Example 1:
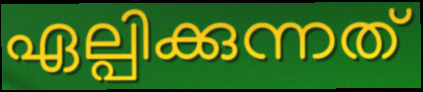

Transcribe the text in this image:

ഏല്പിക്കുന്നത്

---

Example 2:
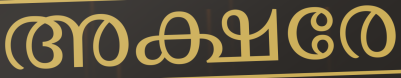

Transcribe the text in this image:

അക്ഷരേ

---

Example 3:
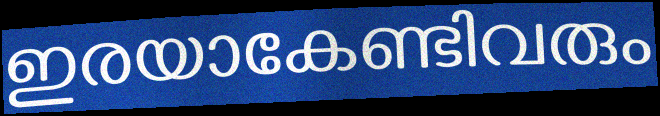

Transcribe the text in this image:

ഇരയാകേണ്ടിവരും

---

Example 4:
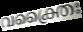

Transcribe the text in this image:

വക്ത്രൈഃ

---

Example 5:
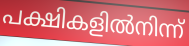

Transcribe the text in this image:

പക്ഷികളിൽനിന്ന്